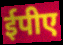
ईपीए